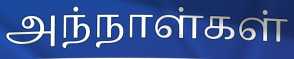
அந்நாள்கள்